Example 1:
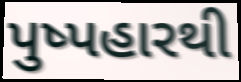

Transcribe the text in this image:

પુષ્પહારથી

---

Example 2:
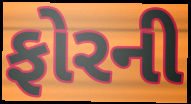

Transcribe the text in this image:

ફોરની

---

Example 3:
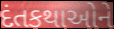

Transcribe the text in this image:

દંતકથાઓને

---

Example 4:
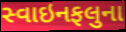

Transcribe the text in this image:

સ્વાઇનફલુના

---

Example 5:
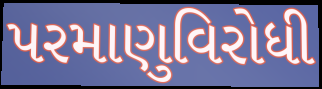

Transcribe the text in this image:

પરમાણુવિરોધી